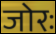
जोरः